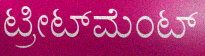
ಟ್ರೀಟ್‌ಮೆಂಟ್